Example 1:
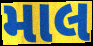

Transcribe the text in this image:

માલ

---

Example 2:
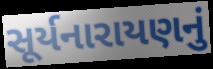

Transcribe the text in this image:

સૂર્યનારાયણનું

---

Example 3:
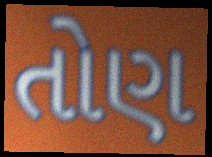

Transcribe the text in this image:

તોણ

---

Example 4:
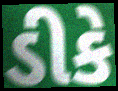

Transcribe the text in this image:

ડીકે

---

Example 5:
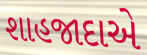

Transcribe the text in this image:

શાહજાદાએ